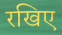
रखिए